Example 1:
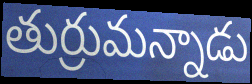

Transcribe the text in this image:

తుర్రుమన్నాడు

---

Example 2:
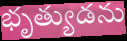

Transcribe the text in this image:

భృత్యుడను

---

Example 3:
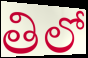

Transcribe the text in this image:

తిలో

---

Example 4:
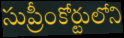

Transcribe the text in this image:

సుప్రీంకోర్టులోని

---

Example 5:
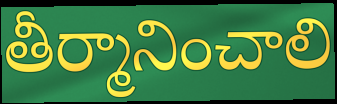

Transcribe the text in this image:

తీర్మానించాలి